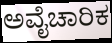
ಅವೈಚಾರಿಕ